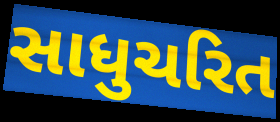
સાધુચરિત